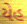
યેહ